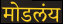
मोडलंय